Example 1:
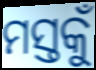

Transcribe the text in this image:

ମସ୍ତକୁଁ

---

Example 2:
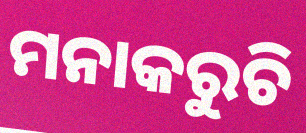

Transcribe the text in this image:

ମନାକରୁଚି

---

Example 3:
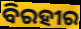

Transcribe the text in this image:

ବିରହୀର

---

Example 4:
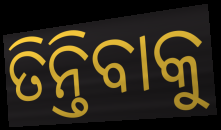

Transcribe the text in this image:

ତିନ୍ତିବାକୁ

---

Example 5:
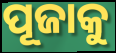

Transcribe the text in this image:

ପୂଜାକୁ